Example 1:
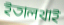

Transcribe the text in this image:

ইতালথাই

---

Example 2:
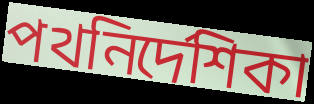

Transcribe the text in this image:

পথনির্দেশিকা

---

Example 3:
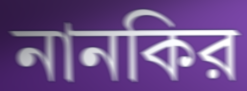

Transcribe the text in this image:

নানকির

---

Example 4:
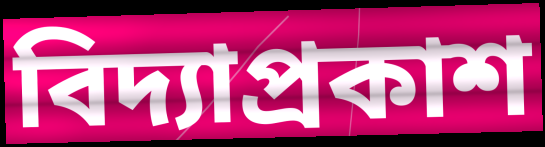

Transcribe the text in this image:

বিদ্যাপ্রকাশ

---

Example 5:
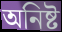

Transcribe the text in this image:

অনিষ্ট